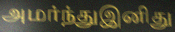
அமர்ந்துஇனிது